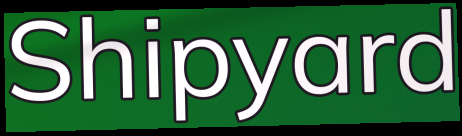
Shipyard